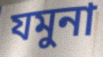
যমুনা